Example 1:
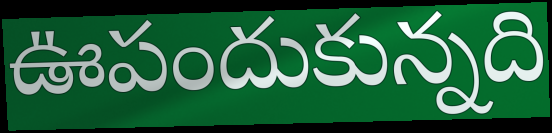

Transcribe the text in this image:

ఊపందుకున్నది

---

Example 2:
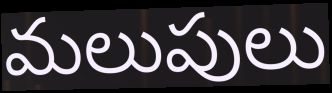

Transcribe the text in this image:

మలుపులు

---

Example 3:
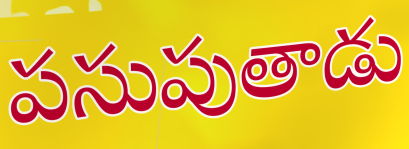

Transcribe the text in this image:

పసుపుతాడు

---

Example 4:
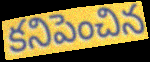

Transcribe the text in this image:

కనిపెంచిన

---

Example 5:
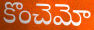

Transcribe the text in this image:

కొంచెమో